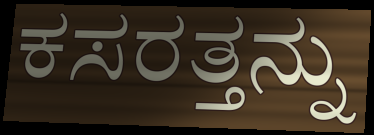
ಕಸರತ್ತನ್ನು